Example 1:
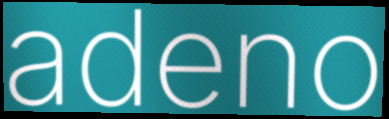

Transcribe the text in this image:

adeno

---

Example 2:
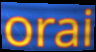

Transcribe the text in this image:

orai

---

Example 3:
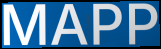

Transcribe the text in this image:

MAPP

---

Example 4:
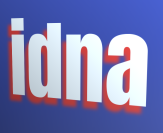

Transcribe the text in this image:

idna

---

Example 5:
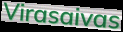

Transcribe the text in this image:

Virasaivas